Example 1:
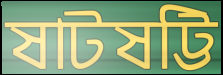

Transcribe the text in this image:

ষাটষট্টি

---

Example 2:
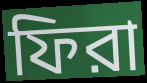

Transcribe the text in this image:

ফিরা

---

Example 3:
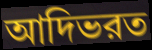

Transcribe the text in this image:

আদিভরত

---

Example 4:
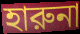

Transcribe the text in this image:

হারুনা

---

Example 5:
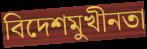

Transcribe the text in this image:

বিদেশমুখীনতা